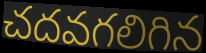
చదవగలిగిన